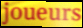
joueurs